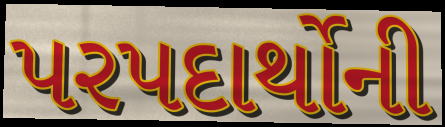
પરપદાર્થોની